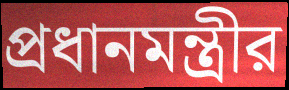
প্রধানমন্ত্রীর